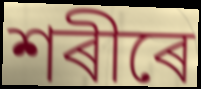
শৰীৰে